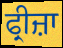
ਫ੍ਰੀਜ਼ਾ